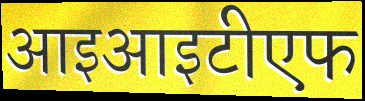
आइआइटीएफ